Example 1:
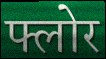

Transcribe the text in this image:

फ्लोर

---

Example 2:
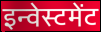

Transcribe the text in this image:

इन्वेस्टमेंट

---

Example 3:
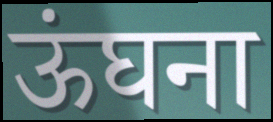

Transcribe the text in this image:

ऊंघना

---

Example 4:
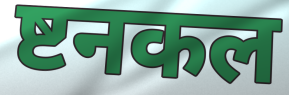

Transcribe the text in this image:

ष्टनकल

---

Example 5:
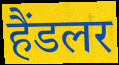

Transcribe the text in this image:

हैंडलर